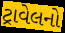
ટ્રાવેલનો